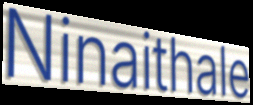
Ninaithale